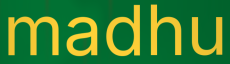
madhu